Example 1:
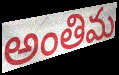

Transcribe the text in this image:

అంతిమ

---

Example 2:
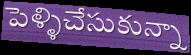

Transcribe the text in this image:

పెళ్ళిచేసుకున్నా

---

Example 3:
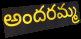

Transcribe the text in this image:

అందరమ్మ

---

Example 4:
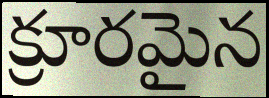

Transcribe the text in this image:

క్రూరమైన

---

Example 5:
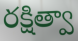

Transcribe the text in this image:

రక్షిత్వా